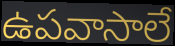
ఉపవాసాలే